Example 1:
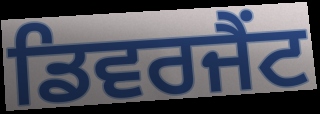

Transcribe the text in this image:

ਡਿਵਰਜੈਂਟ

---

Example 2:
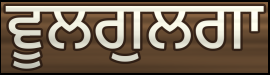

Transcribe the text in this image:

ਵੂਲਗੁਲਗਾ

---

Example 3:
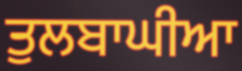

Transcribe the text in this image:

ਤੁਲਬਾਘੀਆ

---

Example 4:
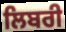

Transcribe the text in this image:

ਲਿਬਰੀ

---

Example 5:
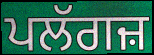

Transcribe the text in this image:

ਪਲੱਗਜ਼